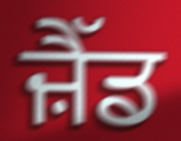
ਜ਼ੈੱਡ